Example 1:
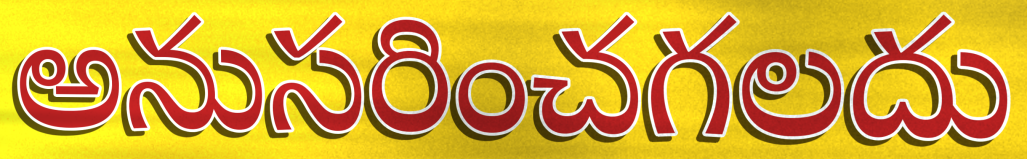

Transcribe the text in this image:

అనుసరించగలదు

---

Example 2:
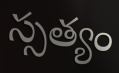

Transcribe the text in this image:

స్సత్యం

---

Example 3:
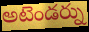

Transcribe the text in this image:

అటెండర్ను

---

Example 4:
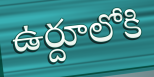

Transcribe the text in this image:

ఉర్దూలోకి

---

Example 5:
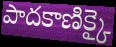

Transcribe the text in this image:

పాదకాణిక్కై